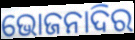
ଭୋଜନାଦିର